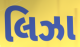
લિઝા